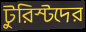
টুরিস্টদের